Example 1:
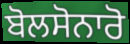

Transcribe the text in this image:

ਬੋਲਸੋਨਾਰੋ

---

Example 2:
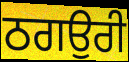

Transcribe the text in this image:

ਠਗਉਰੀ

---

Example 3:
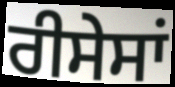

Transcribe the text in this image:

ਰੀਸੇਸਾਂ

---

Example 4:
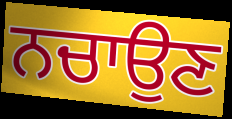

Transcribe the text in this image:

ਨਚਾਉਣ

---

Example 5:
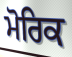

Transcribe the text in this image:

ਮੋਰਿਕ